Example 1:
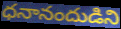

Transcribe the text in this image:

ధనానందుడిని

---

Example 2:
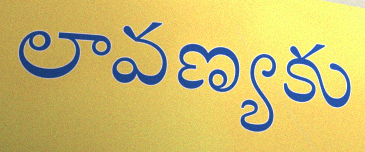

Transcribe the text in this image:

లావణ్యకు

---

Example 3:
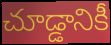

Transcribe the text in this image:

చూడ్డానికీ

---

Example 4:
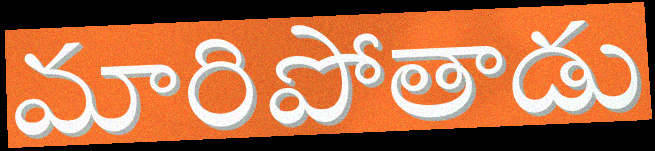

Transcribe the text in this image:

మారిపోతాడు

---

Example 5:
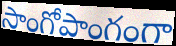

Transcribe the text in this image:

సాంగోపాంగంగా